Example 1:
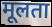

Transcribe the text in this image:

मूलता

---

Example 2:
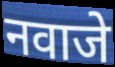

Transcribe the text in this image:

नवाजे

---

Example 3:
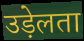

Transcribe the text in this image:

उड़ेलता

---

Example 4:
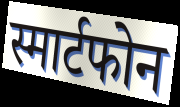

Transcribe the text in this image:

स्मार्टफोन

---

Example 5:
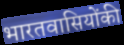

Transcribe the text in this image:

भारतवासियोंकी